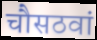
चौसठवां